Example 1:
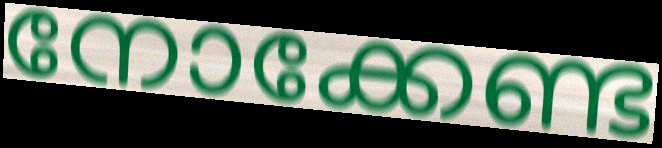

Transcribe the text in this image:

നോക്കേണ്ട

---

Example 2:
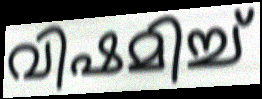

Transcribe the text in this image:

വിഷമിച്ച്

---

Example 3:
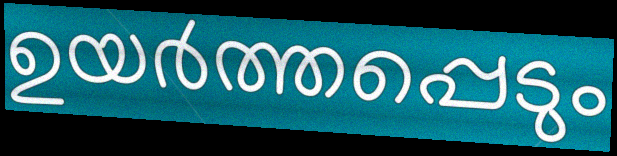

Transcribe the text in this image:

ഉയർത്തപ്പെടും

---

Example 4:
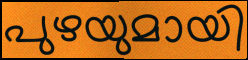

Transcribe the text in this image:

പുഴയുമായി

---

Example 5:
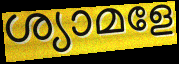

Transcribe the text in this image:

ശ്യാമളേ